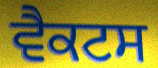
ਵੈਕਟਸ